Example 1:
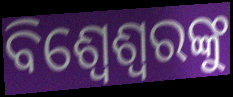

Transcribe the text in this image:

ବିଶ୍ୱେଶ୍ୱରଙ୍କୁ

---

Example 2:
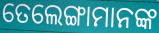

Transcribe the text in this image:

ତେଲେଙ୍ଗାମାନଙ୍କ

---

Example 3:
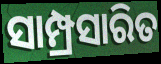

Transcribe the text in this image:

ସାମ୍ପ୍ରସାରିତ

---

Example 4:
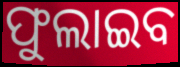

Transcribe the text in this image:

ଫୁଲାଇବ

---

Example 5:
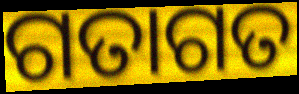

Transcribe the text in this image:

ଗତାଗତ